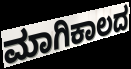
ಮಾಗಿಕಾಲದ